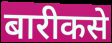
बारीकसे